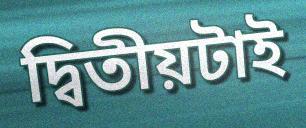
দ্বিতীয়টাই